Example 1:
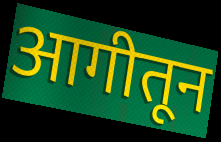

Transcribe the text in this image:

आगीतून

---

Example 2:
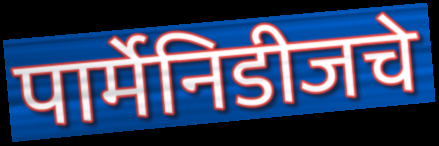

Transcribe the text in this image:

पार्मेनिडीजचे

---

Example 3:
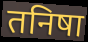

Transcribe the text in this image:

तनिषा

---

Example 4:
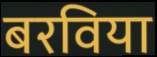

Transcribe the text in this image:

बरविया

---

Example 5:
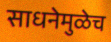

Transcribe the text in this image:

साधनेमुळेच